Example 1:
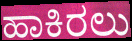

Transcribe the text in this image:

ಹಾಕಿರಲು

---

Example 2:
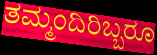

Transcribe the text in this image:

ತಮ್ಮಂದಿರಿಬ್ಬರೂ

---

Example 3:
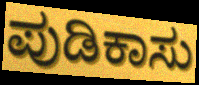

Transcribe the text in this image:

ಪುಡಿಕಾಸು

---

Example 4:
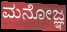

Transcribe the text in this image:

ಮನೋಜ್ಞ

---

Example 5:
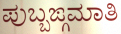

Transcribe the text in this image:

ಪುಬ್ಬಙ್ಗಮಾತಿ